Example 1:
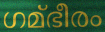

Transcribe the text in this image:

ഗമ്ഭീരം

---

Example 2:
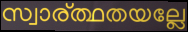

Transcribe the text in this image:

സ്വാര്ത്ഥതയല്ലേ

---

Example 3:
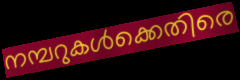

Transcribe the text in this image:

നമ്പറുകൾക്കെതിരെ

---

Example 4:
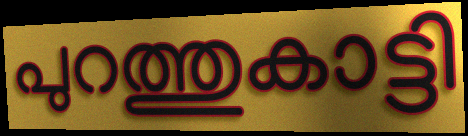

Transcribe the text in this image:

പുറത്തുകാട്ടി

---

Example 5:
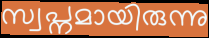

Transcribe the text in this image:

സ്വപ്നമായിരുന്നു